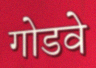
गोडवे